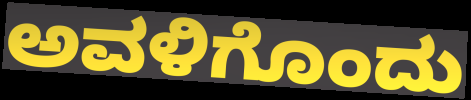
ಅವಳಿಗೊಂದು